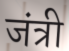
जंत्री